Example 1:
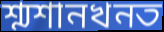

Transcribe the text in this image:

শ্মশানখনত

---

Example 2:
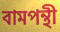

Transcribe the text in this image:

বামপন্থী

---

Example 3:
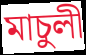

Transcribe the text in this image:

মাচুলী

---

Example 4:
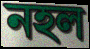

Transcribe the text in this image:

নহল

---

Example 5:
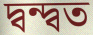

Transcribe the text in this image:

দ্বন্দ্বত